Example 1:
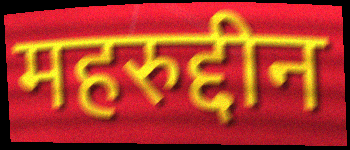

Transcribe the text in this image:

महरुद्दीन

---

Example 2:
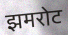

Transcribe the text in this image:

झमरोट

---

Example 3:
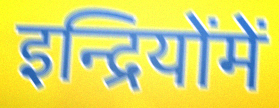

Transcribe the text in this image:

इन्द्रियोंमें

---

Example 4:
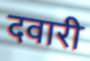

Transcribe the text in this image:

दवारी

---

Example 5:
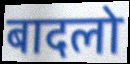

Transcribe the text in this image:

बादलो